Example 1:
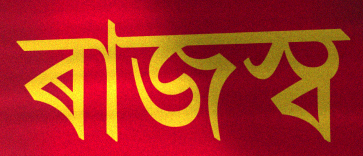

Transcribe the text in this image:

ৰাজস্ব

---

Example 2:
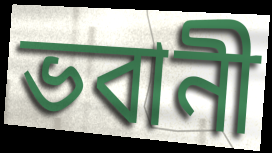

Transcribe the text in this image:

ভবানী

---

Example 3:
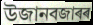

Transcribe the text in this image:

উজানবজাৰৰ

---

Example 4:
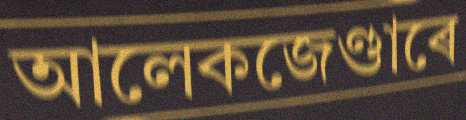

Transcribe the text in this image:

আলেকজেণ্ডাৰে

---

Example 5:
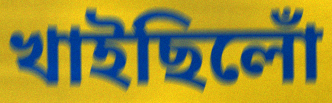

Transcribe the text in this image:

খাইছিলোঁ